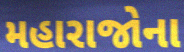
મહારાજોના